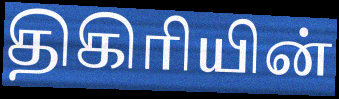
திகிரியின்